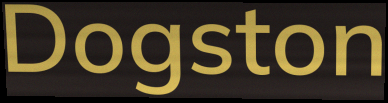
Dogston